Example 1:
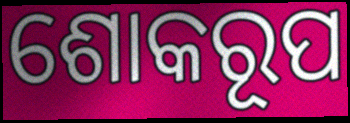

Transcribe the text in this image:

ଶୋକରୂପ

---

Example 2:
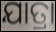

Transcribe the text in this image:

ଯାତ୍ରା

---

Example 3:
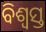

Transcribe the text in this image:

ବିଶ୍ୱସ୍ତ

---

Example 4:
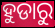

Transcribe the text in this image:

ହୁଡାରୁ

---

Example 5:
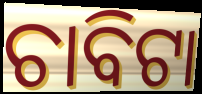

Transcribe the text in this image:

ଚାବିଟା